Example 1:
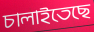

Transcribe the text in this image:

চালাইতেছে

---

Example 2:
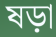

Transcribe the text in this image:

ষড়া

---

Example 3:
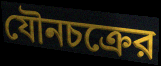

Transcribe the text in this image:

যৌনচক্রের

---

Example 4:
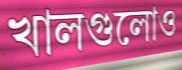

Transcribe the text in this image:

খালগুলোও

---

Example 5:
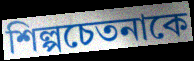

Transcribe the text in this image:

শিল্পচেতনাকে